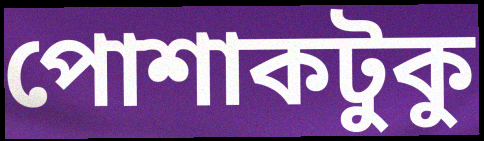
পোশাকটুকু